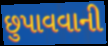
છુપાવવાની